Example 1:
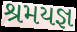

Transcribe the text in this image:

શ્રમયજ્ઞ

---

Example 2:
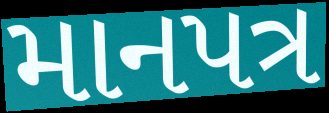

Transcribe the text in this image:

માનપત્ર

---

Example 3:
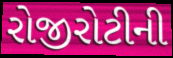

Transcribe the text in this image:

રોજીરોટીની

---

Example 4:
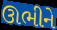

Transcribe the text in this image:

ઊભીને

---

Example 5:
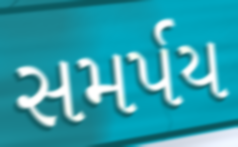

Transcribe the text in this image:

સમર્પય